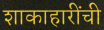
शाकाहारींची